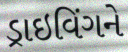
ડ્રાઇવિંગને